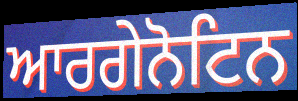
ਆਰਗੇਨੋਟਿਨ